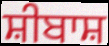
ਸ਼ੀਬਾਸ਼